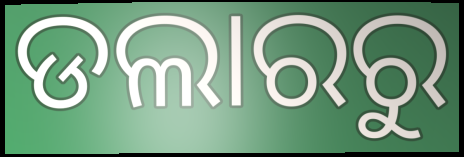
ଡଲାରରୁ